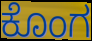
ಕೊಂಗ